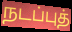
நடப்புத்